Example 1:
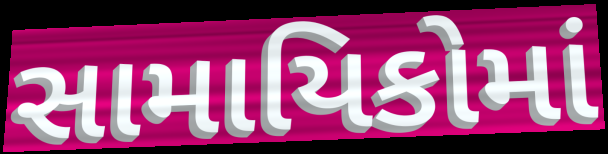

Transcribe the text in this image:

સામાયિકોમાં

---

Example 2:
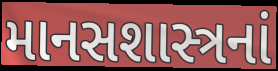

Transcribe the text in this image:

માનસશાસ્ત્રનાં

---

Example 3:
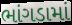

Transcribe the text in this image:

ભાંગડામાં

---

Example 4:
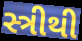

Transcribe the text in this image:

સ્ત્રીથી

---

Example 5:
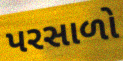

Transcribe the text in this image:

પરસાળો